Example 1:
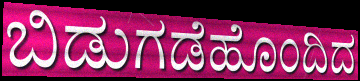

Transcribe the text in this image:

ಬಿಡುಗಡೆಹೊಂದಿದ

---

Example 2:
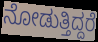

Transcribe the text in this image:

ನೋಡುತ್ತಿದ್ದರೆ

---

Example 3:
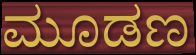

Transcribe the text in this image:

ಮೂಡಣ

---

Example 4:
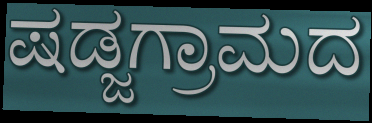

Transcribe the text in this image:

ಷಡ್ಜಗ್ರಾಮದ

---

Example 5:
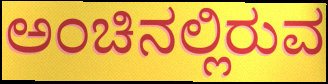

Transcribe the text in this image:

ಅಂಚಿನಲ್ಲಿರುವ